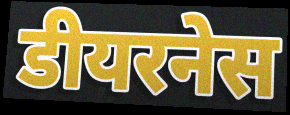
डीयरनेस